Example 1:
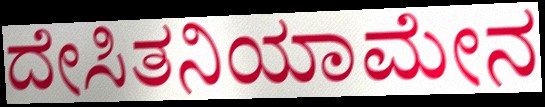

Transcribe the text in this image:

ದೇಸಿತನಿಯಾಮೇನ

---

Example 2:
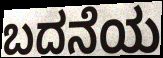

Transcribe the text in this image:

ಬದನೆಯ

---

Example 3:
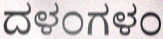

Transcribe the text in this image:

ದಳಂಗಳಂ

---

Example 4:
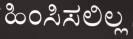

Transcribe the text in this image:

ಹಿಂಸಿಸಲಿಲ್ಲ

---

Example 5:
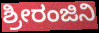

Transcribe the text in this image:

ಶ್ರೀರಂಜಿನಿ